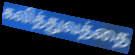
கவித்துவத்தை